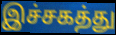
இச்சகத்து